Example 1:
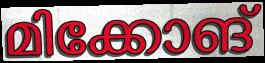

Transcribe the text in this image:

മിക്കോങ്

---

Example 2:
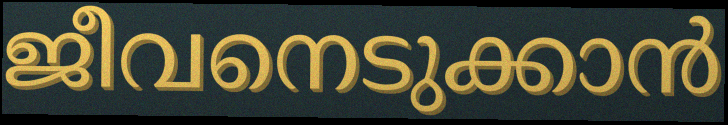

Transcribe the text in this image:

ജീവനെടുക്കാൻ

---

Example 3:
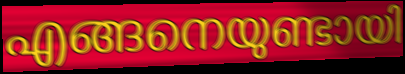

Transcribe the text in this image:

എങ്ങനെയുണ്ടായി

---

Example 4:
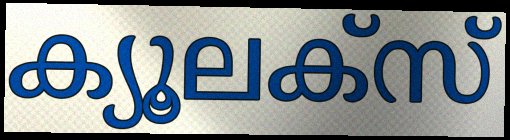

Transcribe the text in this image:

ക്യൂലക്സ്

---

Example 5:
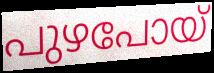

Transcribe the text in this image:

പുഴപോയ്